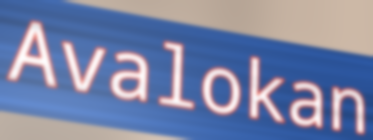
Avalokan